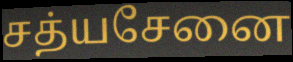
சத்யசேனை